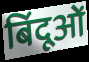
बिंदूओं